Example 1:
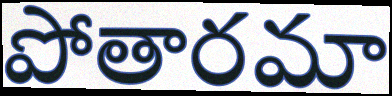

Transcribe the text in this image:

పోతారమా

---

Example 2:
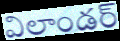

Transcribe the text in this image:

విలాండర్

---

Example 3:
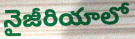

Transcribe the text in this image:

నైజీరియాలో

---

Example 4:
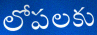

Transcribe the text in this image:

లోపలకు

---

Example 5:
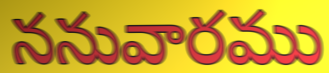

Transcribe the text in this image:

ననువారము